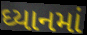
ઘ્યાનમાં